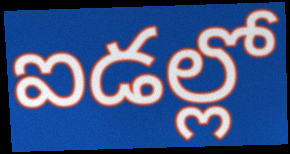
ఐడల్లో